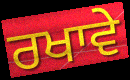
ਰਖਾਵੇ